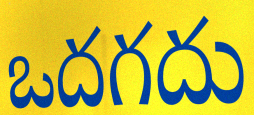
ఒదగదు